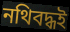
নথিবদ্ধই